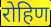
रोहिण